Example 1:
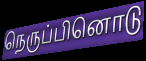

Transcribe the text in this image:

நெருப்பினொடு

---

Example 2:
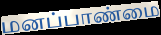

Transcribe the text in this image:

மனப்பாண்மை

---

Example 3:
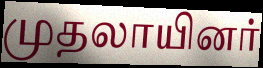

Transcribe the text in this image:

முதலாயினர்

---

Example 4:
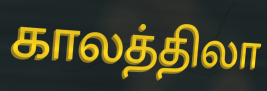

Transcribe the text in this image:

காலத்திலா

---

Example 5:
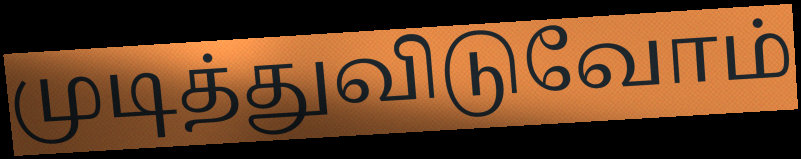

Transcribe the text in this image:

முடித்துவிடுவோம்